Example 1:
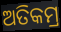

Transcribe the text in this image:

ଅତିକମ୍ର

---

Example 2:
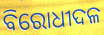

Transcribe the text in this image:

ବିରୋଧୀଦଳ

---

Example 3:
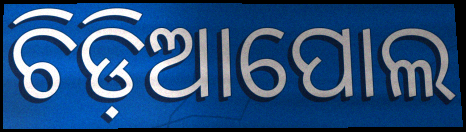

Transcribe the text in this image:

ଚିଡ଼ିଆପୋଲ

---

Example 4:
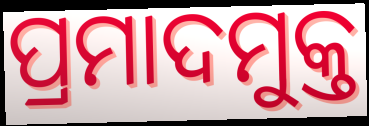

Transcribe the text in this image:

ପ୍ରମାଦମୁକ୍ତ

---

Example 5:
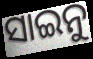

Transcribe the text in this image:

ସାଇନୁ